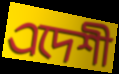
এদেশী